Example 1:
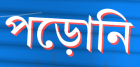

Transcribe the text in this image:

পড়োনি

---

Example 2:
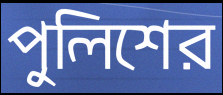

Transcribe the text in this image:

পুলিশের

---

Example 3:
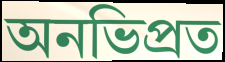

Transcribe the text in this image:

অনভিপ্রত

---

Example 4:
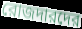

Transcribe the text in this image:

রোজদারদের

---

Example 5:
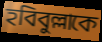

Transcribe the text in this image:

হবিবুল্লাকে